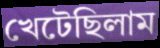
খেটেছিলাম